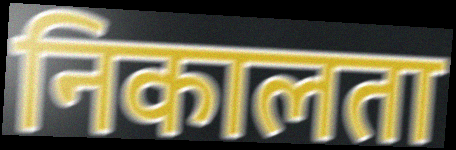
निकालता